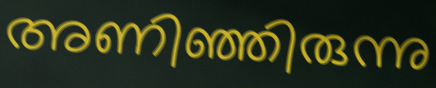
അണിഞ്ഞിരുന്നു